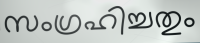
സംഗ്രഹിച്ചതും